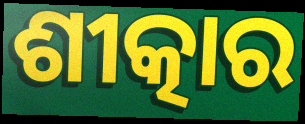
ଶୀତ୍କାର